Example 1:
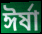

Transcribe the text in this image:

ঈর্ষা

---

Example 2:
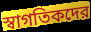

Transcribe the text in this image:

স্বাগতিকদের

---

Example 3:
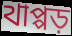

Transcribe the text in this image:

থাপ্পড়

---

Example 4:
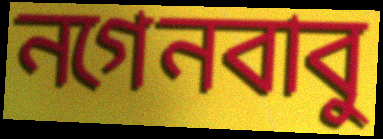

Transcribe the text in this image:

নগেনবাবু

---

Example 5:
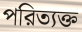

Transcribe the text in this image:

পরিত্যক্ত